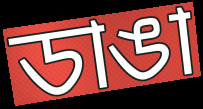
ডাঙা